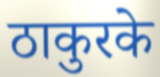
ठाकुरके